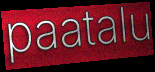
paatalu